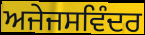
ਅਜੇਜਸਵਿੰਦਰ